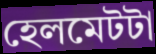
হেলমেটটা